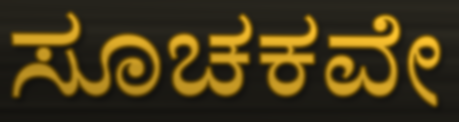
ಸೂಚಕವೇ